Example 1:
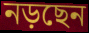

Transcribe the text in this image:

নড়ছেন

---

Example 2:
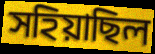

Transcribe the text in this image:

সহিয়াছিল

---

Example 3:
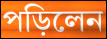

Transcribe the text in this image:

পড়িলেন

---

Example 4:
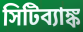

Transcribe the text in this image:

সিটিব্যাঙ্ক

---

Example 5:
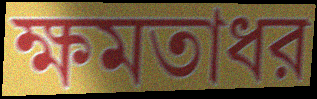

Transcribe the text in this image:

ক্ষমতাধর